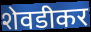
शेवडीकर